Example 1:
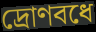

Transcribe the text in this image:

দ্রোণবধে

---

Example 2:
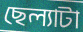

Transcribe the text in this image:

ছেল্যাটা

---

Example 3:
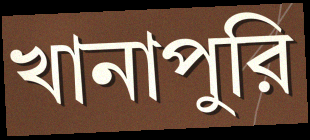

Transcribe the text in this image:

খানাপুরি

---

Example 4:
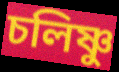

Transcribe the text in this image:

চলিষ্ণু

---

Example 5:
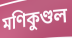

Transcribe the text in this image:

মণিকুণ্ডল